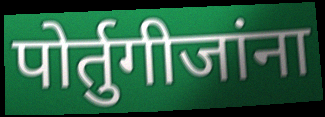
पोर्तुगीजांना